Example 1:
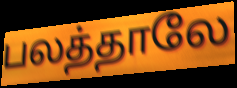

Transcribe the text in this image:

பலத்தாலே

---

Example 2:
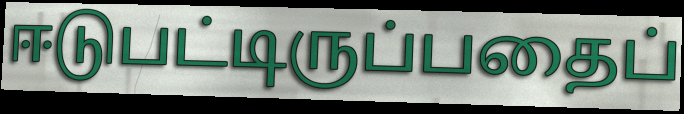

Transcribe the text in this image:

ஈடுபட்டிருப்பதைப்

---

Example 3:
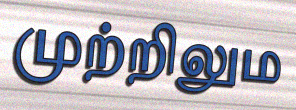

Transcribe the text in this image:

முற்றிலும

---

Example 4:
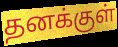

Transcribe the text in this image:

தனக்குள்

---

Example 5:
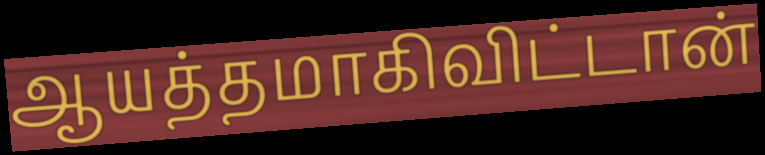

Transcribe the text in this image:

ஆயத்தமாகிவிட்டான்